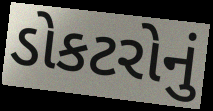
ડોકટરોનું